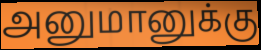
அனுமானுக்கு